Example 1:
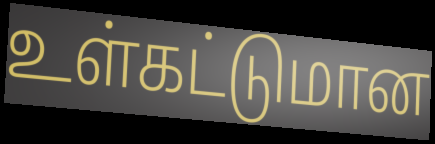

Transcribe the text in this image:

உள்கட்டுமான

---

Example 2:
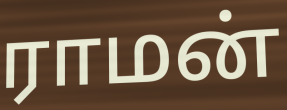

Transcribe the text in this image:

ராமன்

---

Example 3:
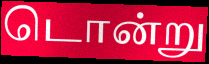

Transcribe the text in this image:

டொன்று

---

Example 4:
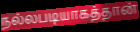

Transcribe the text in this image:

நல்லபடியாகத்தான்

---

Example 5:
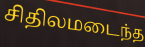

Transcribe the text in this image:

சிதிலமடைந்த